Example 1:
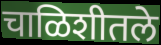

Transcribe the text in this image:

चाळिशीतले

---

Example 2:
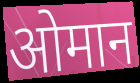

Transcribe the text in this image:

ओमान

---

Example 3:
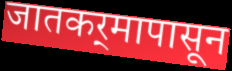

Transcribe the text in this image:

जातकर्मापासून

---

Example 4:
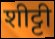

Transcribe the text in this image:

शीट्टी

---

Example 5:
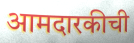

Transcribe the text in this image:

आमदारकीची